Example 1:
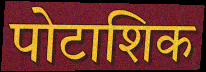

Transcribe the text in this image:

पोटाशिक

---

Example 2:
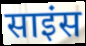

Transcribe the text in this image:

साइंस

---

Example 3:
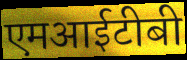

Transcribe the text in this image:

एमआईटीबी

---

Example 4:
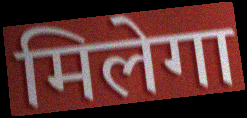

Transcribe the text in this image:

मिलेगा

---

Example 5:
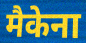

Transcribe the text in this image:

मैकेना